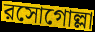
রসোগোল্লা